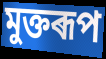
মুক্তৰূপ